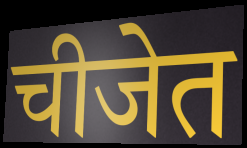
चीजेत